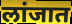
लांजात